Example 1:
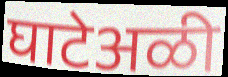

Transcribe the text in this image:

घाटेअळी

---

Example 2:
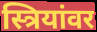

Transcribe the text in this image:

स्त्रियांवर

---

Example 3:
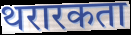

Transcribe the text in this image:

थरारकता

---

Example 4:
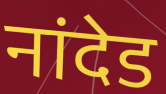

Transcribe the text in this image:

नांदेड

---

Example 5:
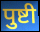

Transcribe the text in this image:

पुष्टी